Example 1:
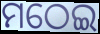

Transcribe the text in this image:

ମଠେଇ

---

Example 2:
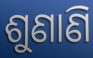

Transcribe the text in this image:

ଶୁଣାଣି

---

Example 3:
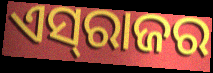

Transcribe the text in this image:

ଏସ୍‍ରାଜର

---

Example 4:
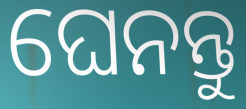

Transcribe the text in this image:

ଘେନନ୍ତୁ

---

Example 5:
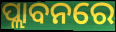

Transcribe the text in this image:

ପ୍ଲାବନରେ